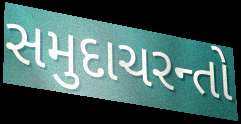
સમુદાચરન્તો